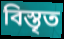
বিস্তৃত